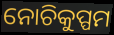
ନୋଚିକୁପ୍ପମ